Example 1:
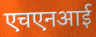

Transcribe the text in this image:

एचएनआई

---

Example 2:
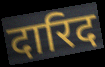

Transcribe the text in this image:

दारिद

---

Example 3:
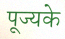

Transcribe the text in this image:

पूज्यके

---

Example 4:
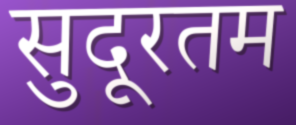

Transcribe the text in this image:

सुदूरतम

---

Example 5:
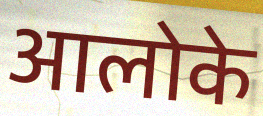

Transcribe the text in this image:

आलोके